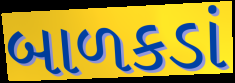
બાળકડાં